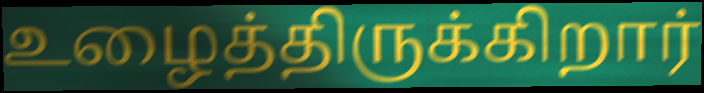
உழைத்திருக்கிறார்